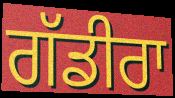
ਗੱਡੀਰਾ